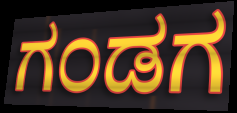
ಗಂಡಗ